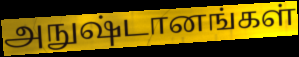
அநுஷ்டானங்கள்